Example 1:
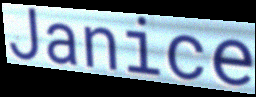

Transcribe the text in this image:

Janice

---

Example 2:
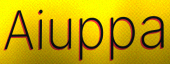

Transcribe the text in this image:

Aiuppa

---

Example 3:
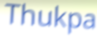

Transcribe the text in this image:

Thukpa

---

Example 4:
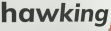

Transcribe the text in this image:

hawking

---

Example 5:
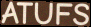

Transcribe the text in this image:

ATUFS